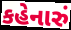
કહેનારું